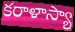
కరాళాస్యా